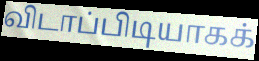
விடாப்பிடியாகக்